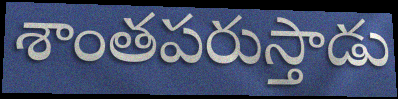
శాంతపరుస్తాడు